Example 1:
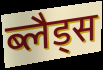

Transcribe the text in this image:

ब्लैड्स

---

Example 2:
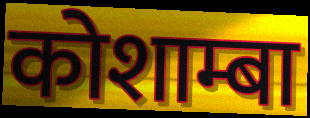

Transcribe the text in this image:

कोशाम्बा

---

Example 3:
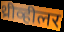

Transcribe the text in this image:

थ्रीव्हीलर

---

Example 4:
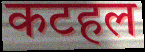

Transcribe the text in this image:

कटहल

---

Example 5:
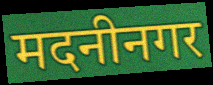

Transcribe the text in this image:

मदनीनगर